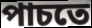
পাচতে